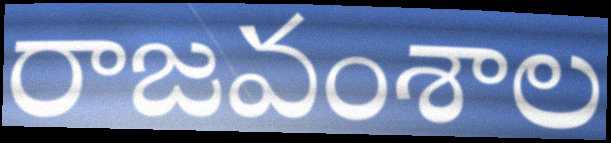
రాజవంశాల